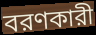
বরণকারী